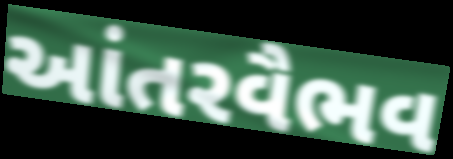
આંતરવૈભવ